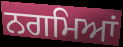
ਨਗਮਿਆਂ